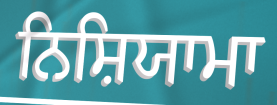
ਨਿਸ਼ਿਯਾਮਾ